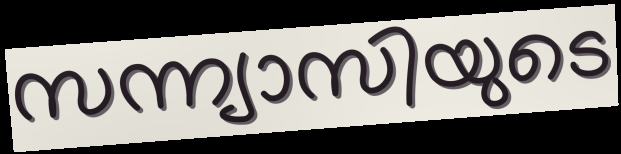
സന്ന്യാസിയുടെ